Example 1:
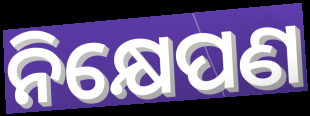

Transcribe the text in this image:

ନିକ୍ଷେପଣ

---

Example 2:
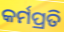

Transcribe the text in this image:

କର୍ମପ୍ରତି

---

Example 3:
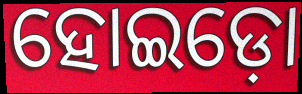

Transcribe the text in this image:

ହୋଇଡ଼ୋ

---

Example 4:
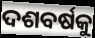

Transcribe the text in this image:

ଦଶବର୍ଷକୁ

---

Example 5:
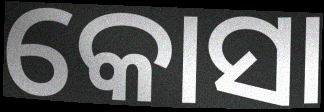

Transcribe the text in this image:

କୋସା